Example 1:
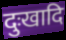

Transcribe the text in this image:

दुःखादि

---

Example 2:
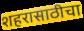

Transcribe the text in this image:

शहरासाठीचा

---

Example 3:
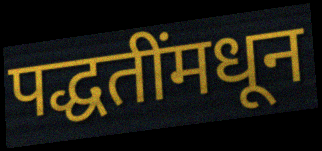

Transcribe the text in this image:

पद्धतींमधून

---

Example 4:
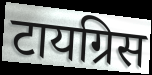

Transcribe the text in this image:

टायग्रिस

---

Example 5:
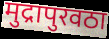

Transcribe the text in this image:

मुद्रापुरवठा